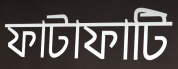
ফাটাফাটি